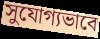
সুযোগ্যভাবে